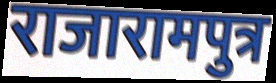
राजारामपुत्र